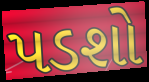
પડશો